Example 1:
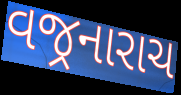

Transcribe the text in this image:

વજ્રનારાચ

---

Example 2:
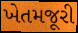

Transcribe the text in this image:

ખેતમજૂરી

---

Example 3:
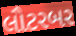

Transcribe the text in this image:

લૌટરબર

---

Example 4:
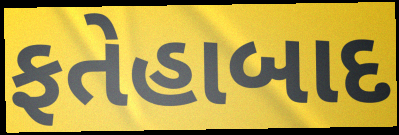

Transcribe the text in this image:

ફતેહાબાદ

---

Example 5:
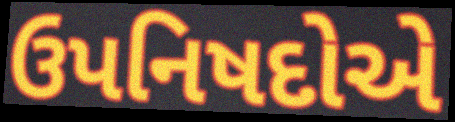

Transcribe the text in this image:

ઉપનિષદોએ